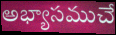
అభ్యాసముచే